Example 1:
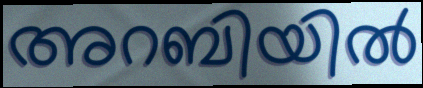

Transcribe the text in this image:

അറബിയിൽ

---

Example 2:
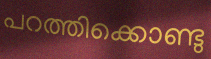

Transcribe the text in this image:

പറത്തിക്കൊണ്ടു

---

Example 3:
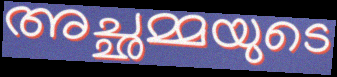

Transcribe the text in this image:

അച്ഛമ്മയുടെ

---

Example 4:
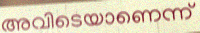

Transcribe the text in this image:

അവിടെയാണെന്ന്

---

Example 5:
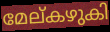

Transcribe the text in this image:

മേല്കഴുകി